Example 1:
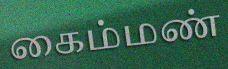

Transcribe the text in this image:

கைம்மண்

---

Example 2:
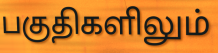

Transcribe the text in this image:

பகுதிகளிலும்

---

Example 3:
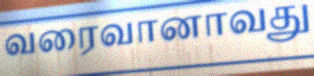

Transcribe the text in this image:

வரைவானாவது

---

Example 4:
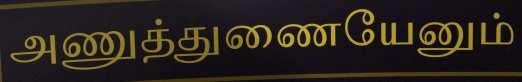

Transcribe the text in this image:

அணுத்துணையேனும்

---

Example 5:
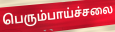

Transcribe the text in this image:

பெரும்பாய்ச்சலை